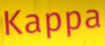
Kappa